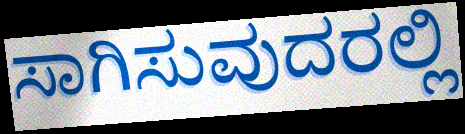
ಸಾಗಿಸುವುದರಲ್ಲಿ